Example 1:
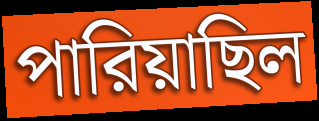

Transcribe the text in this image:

পারিয়াছিল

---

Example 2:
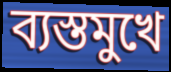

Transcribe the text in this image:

ব্যস্তমুখে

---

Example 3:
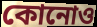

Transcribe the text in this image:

কোনোও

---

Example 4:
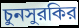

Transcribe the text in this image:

চুনসুরকির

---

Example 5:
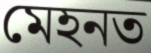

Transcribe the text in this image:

মেহনত